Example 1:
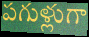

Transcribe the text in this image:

పగుళ్లుగా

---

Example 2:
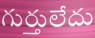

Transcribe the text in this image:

గుర్తులేదు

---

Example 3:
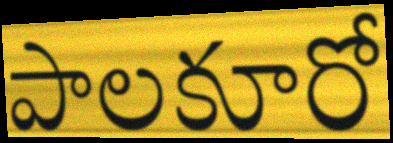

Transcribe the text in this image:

పాలకూరో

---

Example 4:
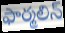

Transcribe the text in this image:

ఫార్మలిన్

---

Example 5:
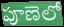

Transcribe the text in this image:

పూణెలో